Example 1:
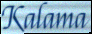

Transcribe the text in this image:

Kalama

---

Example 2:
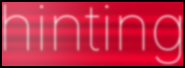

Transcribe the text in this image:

hinting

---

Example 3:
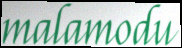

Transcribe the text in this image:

malamodu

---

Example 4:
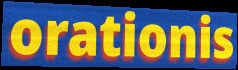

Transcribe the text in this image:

orationis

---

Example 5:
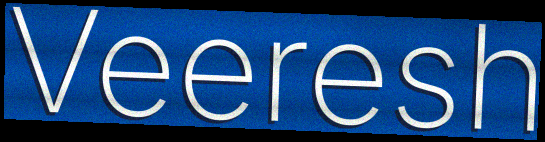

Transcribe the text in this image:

Veeresh